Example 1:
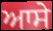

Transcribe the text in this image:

ਆਸੇ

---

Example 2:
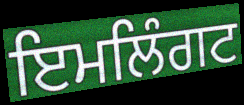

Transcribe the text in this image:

ਇਮਲਿੰਗਟ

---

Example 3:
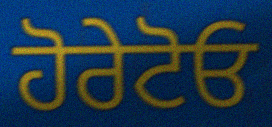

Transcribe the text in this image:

ਹੋਰੇਟੋਓ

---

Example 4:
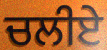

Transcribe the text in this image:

ਚਲੀਏ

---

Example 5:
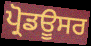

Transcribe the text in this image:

ਪ੍ਰੋਡਊਸਰ